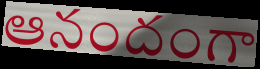
ఆనందంగా